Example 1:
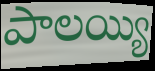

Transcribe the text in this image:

పాలయ్యి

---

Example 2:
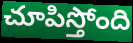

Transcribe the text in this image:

చూపిస్తోంది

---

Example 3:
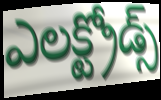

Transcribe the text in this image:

ఎలక్ట్రోడ్స్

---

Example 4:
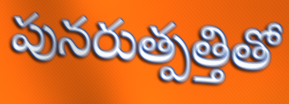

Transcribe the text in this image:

పునరుత్పత్తితో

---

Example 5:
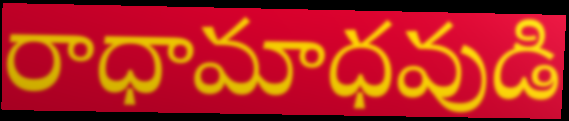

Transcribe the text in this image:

రాధామాధవుడి